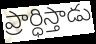
ప్రార్ధిస్తాడు